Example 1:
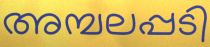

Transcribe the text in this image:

അമ്പലപ്പടി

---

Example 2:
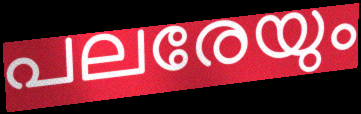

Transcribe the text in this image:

പലരേയും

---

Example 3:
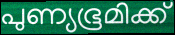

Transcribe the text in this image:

പുണ്യഭൂമിക്ക്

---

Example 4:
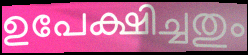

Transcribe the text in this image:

ഉപേക്ഷിച്ചതും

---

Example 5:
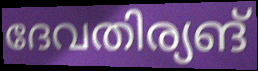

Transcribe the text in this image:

ദേവതിര്യങ്